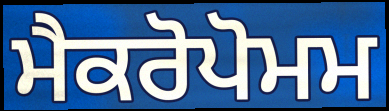
ਮੈਕਰੋਪੋਮਮ